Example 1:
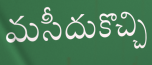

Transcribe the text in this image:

మసీదుకొచ్చి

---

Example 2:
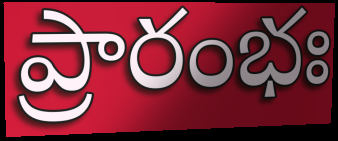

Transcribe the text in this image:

ప్రారంభః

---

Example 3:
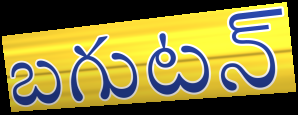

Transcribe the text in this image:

బగుటన్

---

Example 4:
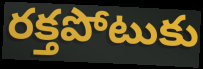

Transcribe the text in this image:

రక్తపోటుకు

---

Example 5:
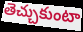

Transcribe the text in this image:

తెచ్చుకుంటా